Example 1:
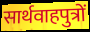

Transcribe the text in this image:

सार्थवाहपुत्रों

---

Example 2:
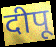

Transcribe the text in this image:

दीपू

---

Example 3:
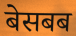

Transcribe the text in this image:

बेसबब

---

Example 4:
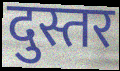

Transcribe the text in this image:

दुस्तर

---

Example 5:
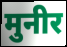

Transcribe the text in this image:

मुनीर